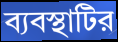
ব্যবস্থাটির